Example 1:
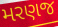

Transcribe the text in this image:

મરણજ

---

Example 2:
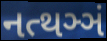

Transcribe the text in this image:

નત્થઞ્ઞં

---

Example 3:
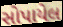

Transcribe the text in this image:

સોપાયેલ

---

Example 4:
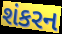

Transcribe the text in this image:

શંકરન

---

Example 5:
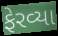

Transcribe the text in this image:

ફેરવ્યા